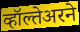
व्हॉल्तेअरने